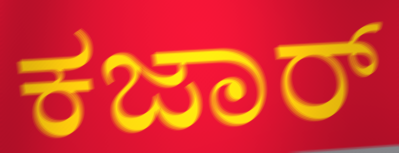
ಕಜಾರ್